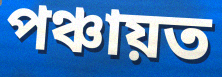
পঞ্চায়ত